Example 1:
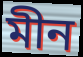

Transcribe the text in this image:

মীন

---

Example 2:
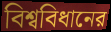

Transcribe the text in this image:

বিশ্ববিধানের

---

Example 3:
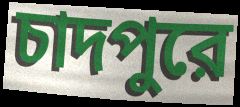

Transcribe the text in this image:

চাদপুরে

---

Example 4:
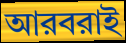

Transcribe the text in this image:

আরবরাই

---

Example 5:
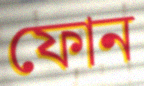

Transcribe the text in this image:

ফোন